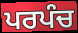
ਪਰਪੰਚ